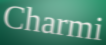
Charmi